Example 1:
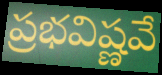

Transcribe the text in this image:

ప్రభవిష్ణవే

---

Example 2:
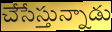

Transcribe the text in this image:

చేసేస్తున్నాడు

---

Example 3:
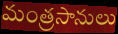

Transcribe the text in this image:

మంత్రసానులు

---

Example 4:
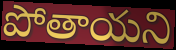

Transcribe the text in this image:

పోతాయని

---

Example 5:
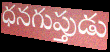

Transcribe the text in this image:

ధనగుప్తుడు